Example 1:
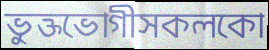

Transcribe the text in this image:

ভুক্তভোগীসকলকো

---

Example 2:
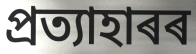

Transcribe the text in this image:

প্ৰত্যাহাৰৰ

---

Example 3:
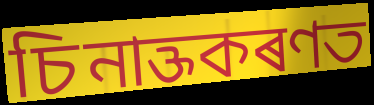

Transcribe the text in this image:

চিনাক্তকৰণত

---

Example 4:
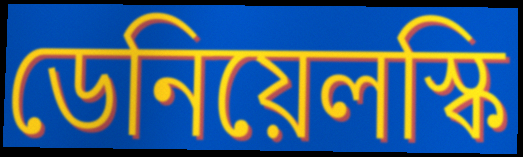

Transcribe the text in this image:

ডেনিয়েলস্কি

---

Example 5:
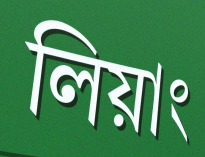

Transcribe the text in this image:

লিয়াং